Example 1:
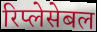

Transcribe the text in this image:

रिप्लेसेबल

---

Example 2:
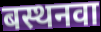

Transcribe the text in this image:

बस्थनवा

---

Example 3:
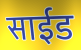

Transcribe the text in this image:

साईड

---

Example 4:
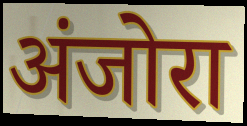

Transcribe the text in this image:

अंजोरा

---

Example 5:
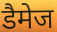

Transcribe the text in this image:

डैमेज